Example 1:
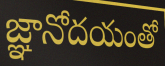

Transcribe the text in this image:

జ్ఞానోదయంతో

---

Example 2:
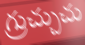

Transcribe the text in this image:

గ్రుచ్చుచు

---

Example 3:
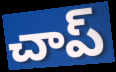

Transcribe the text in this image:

చాప్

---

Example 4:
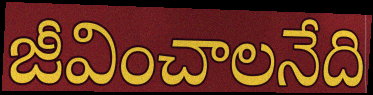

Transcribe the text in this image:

జీవించాలనేది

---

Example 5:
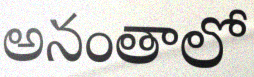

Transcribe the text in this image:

అనంతాలో